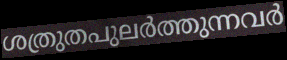
ശത്രുതപുലർത്തുന്നവർ